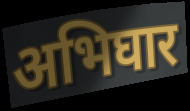
अभिघार